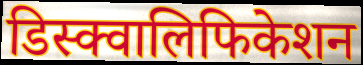
डिस्क्वालिफिकेशन